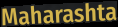
Maharashta